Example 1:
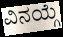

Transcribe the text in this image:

ವಿನಯ್ಗೆ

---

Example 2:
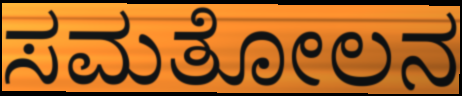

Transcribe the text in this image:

ಸಮತೋಲನ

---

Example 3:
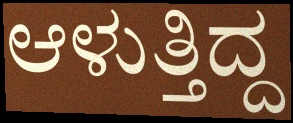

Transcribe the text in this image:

ಆಳುತ್ತಿದ್ದ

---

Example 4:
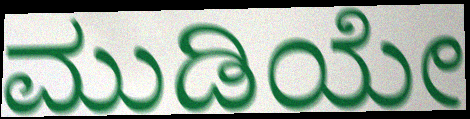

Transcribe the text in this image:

ಮುಡಿಯೇ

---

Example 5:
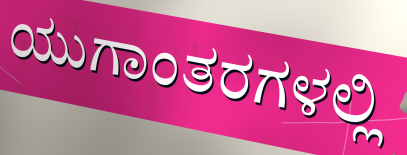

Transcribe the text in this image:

ಯುಗಾಂತರಗಳಲ್ಲಿ